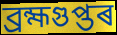
ব্ৰহ্মগুপ্তৰ